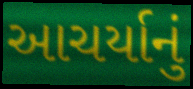
આચર્યાનું